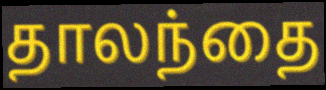
தாலந்தை